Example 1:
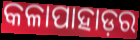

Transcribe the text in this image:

କଳାପାହାଡ଼ର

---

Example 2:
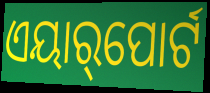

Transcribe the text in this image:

ଏୟାର୍‌ପୋର୍ଟ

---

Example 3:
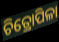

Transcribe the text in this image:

ଚିତ୍ରୋପିଳା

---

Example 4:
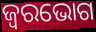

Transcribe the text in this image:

ଜ୍ୱରଭୋଗ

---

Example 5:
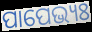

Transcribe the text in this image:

ପାପେଭ୍ୟଃ